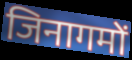
जिनागमों